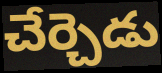
చేర్చెడు